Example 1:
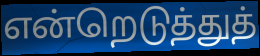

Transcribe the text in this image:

என்றெடுத்துத்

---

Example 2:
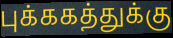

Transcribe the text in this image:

புக்ககத்துக்கு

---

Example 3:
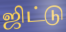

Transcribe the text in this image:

ஜிட்டு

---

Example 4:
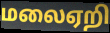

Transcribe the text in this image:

மலைஏறி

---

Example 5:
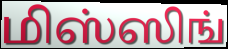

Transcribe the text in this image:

மிஸ்ஸிங்